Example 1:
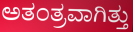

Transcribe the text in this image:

ಅತಂತ್ರವಾಗಿತ್ತು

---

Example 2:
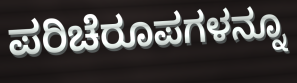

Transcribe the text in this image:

ಪರಿಚೆರೂಪಗಳನ್ನೂ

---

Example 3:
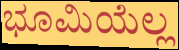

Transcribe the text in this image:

ಭೂಮಿಯೆಲ್ಲ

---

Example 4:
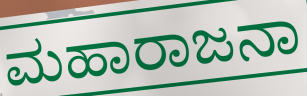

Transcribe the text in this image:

ಮಹಾರಾಜನಾ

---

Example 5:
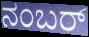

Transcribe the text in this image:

ನಂಬರ್